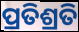
ପ୍ରତିଶ୍ରତି